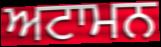
ਅਟਾਮਨ